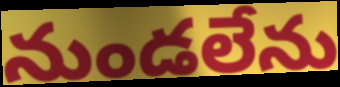
నుండలేను